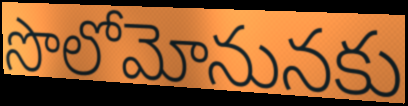
సొలోమోనునకు